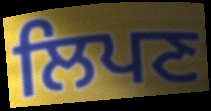
ਲਿਪਣ